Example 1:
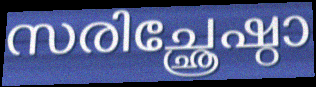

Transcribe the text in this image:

സരിച്ഛ്രേഷ്ഠാ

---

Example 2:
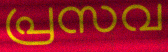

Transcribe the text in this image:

പ്രസവ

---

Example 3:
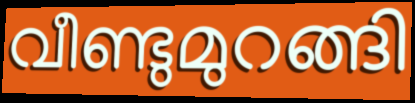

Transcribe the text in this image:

വീണ്ടുമുറങ്ങി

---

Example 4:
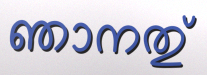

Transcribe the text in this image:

ഞാനതു്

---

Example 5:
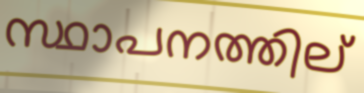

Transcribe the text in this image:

സ്ഥാപനത്തില്